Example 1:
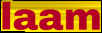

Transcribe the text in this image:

laam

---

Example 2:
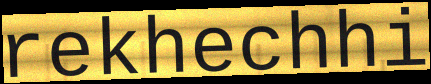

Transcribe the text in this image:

rekhechhi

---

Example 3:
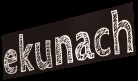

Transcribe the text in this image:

ekunach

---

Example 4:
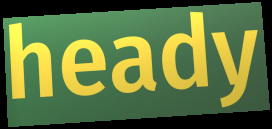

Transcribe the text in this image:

heady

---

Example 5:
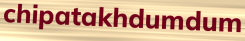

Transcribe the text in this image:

chipatakhdumdum